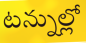
టన్నుల్లో